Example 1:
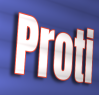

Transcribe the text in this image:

Proti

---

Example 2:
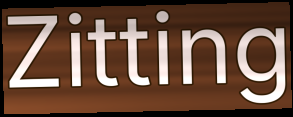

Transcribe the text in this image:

Zitting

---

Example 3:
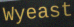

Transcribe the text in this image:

Wyeast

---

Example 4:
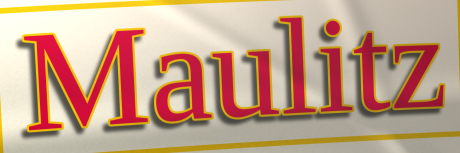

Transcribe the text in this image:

Maulitz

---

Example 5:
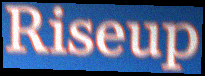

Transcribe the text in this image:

Riseup